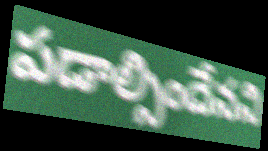
పడాల్సిందేనని